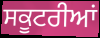
ਸਕੂਟਰੀਆਂ